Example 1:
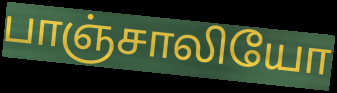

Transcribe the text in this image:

பாஞ்சாலியோ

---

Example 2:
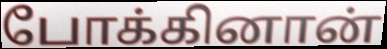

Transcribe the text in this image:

போக்கினான்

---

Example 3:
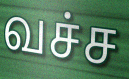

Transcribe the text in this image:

வச்ச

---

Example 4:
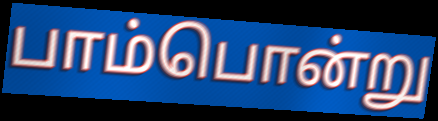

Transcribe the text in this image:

பாம்பொன்று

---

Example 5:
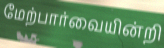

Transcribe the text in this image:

மேற்பார்வையின்றி